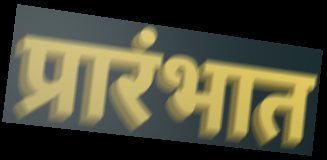
प्रारंभात